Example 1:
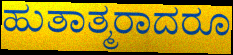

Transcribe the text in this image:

ಹುತಾತ್ಮರಾದರೂ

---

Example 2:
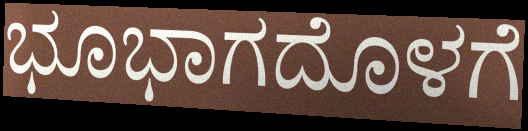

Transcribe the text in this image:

ಭೂಭಾಗದೊಳಗೆ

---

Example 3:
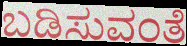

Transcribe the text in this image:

ಬಡಿಸುವಂತೆ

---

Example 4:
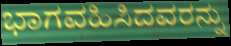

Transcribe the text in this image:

ಭಾಗವಹಿಸಿದವರನ್ನು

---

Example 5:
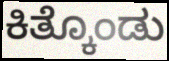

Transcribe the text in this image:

ಕಿತ್ಕೊಂಡು